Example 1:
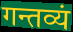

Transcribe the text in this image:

गन्तव्यं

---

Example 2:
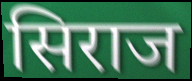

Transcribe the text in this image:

सिराज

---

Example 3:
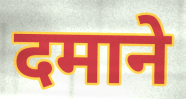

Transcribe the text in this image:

दमाने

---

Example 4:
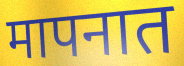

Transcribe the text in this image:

मापनात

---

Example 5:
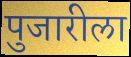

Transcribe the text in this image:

पुजारीला